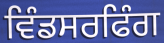
ਵਿੰਡਸਰਫਿੰਗ